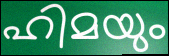
ഹിമയും